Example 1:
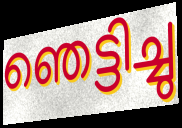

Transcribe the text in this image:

ഞെട്ടിച്ചു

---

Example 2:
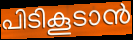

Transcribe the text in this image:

പിടികൂടാൻ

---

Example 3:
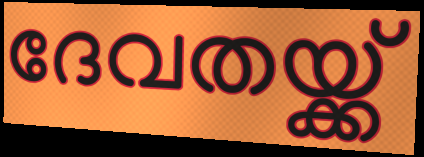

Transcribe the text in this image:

ദേവതയ്ക്ക്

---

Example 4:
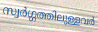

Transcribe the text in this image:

സ്വർഗ്ഗത്തിലുള്ളവർ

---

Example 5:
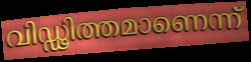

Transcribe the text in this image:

വിഡ്ഢിത്തമാണെന്ന്